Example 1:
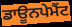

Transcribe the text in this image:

ਡਾਊਨਪੇਮੈਂਟ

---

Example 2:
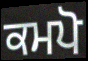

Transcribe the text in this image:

ਕਮਪੋ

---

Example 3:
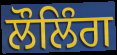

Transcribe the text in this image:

ਲੌਲਿੰਗ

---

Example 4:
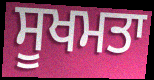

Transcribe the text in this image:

ਸੂਖਮਤਾ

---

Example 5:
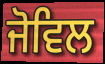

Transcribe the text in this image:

ਜੋਵਿਲ